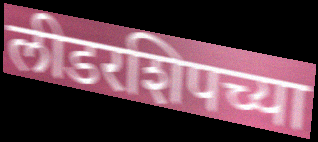
लीडरशिपच्या